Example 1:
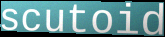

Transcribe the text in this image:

scutoid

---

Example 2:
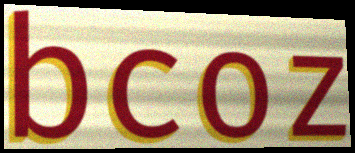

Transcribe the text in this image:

bcoz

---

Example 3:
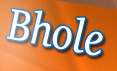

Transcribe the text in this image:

Bhole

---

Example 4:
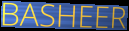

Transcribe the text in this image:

BASHEER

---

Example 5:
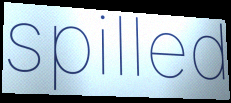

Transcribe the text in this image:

spilled